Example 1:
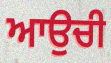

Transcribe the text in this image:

ਆਉਚੀ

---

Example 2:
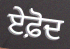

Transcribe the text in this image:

ਏਫ਼ੋਦ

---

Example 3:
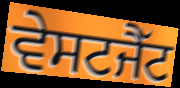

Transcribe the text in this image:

ਵੇਸਟਜੈੱਟ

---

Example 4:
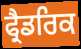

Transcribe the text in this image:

ਫ੍ਰੈਡਰਿਕ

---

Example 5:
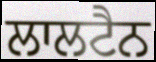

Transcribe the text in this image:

ਲਾਲਟੈਨ